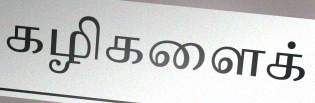
கழிகளைக்